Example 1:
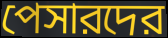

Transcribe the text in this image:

পেসারদের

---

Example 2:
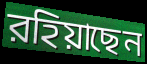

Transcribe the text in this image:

রহিয়াছেন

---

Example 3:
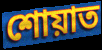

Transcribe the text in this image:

শোয়াত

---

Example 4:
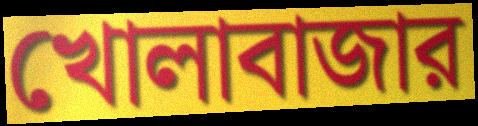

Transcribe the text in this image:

খোলাবাজার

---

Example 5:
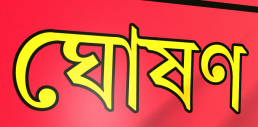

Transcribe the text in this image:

ঘোষণ